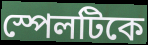
স্পেলটিকে